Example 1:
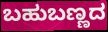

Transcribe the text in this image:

ಬಹುಬಣ್ಣದ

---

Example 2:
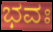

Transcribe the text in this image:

ಭವಃ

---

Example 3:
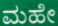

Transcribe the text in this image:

ಮಹೇ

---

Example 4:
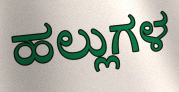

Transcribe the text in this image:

ಹಲ್ಲುಗಳ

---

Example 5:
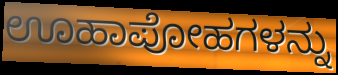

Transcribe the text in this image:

ಊಹಾಪೋಹಗಳನ್ನು